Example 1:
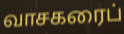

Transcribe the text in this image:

வாசகரைப்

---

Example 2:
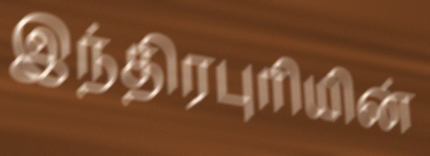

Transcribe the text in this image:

இந்திரபுரியின்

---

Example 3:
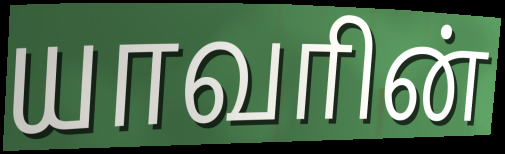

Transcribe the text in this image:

யாவரின்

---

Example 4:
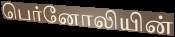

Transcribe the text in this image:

பெர்னோலியின்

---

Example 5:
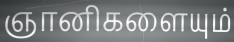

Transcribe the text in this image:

ஞானிகளையும்